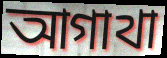
আগাথা